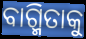
ବାଗ୍ମିତାକୁ